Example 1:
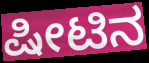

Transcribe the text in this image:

ಷೀಟಿನ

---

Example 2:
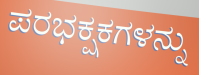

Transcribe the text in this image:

ಪರಭಕ್ಷಕಗಳನ್ನು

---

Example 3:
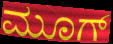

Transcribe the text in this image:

ಮೂಗ್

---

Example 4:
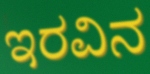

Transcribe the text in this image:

ಇರವಿನ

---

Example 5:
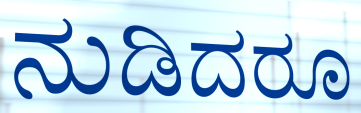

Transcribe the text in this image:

ನುಡಿದರೂ